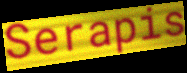
Serapis